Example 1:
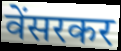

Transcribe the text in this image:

वेंसरकर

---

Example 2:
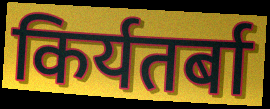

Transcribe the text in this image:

किर्यतर्बा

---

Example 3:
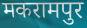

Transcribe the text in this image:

मकरामपुर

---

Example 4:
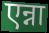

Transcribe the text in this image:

एन्ना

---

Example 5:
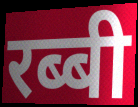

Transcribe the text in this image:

रब्बी